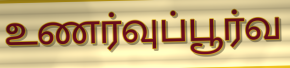
உணர்வுப்பூர்வ